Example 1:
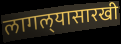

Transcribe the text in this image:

लागल्यासारखी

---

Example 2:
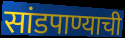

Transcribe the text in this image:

सांडपाण्याची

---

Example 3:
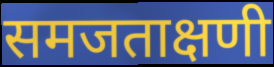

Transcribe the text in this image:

समजताक्षणी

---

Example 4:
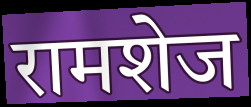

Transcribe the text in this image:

रामशेज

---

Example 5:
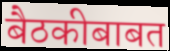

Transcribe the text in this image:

बैठकीबाबत